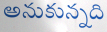
అనుకున్నది